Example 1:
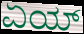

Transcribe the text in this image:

ಏಯ್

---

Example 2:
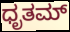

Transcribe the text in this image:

ಧೃತಮ್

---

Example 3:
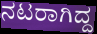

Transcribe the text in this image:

ನಟರಾಗಿದ್ದ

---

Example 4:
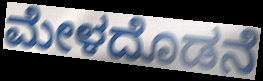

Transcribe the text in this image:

ಮೇಳದೊಡನೆ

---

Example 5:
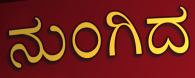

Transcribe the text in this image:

ನುಂಗಿದ